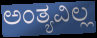
ಅಂತ್ಯವಿಲ್ಲ